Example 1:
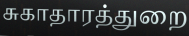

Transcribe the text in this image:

சுகாதாரத்துறை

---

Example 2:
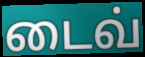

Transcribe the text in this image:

டைவ்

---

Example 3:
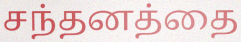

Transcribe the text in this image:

சந்தனத்தை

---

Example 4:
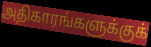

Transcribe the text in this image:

அதிகாரங்களுக்குக்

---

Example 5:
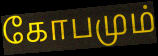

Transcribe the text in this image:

கோபமும்